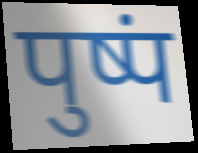
पुष्पं